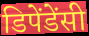
डिपेंडेंसी